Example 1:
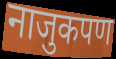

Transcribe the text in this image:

नाजुकपण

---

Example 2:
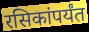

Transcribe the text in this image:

रसिकांपर्यंत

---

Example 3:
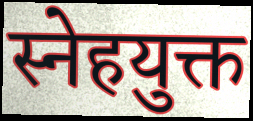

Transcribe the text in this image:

स्नेहयुक्त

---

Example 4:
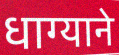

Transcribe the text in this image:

धाग्याने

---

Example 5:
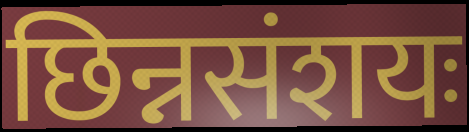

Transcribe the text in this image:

छिन्नसंशयः